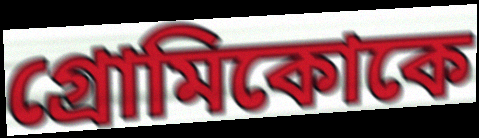
গ্রোমিকোকে